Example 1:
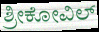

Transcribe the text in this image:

ಶ್ರೀಕೋವಿಲ್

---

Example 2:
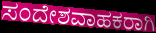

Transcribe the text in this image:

ಸಂದೇಶವಾಹಕರಾಗಿ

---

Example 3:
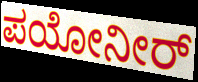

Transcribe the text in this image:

ಪಯೋನೀರ್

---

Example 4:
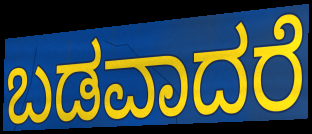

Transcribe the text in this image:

ಬಡವಾದರೆ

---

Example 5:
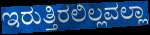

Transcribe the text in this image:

ಇರುತ್ತಿರಲಿಲ್ಲವಲ್ಲಾ